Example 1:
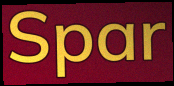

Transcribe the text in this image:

Spar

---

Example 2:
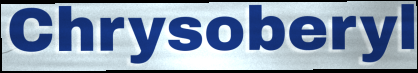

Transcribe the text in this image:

Chrysoberyl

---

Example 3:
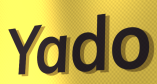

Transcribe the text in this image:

Yado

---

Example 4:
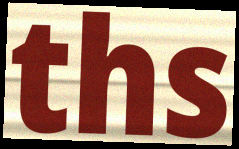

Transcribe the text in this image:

ths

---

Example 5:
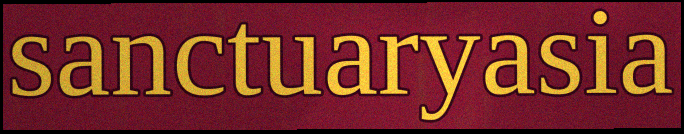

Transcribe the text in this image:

sanctuaryasia